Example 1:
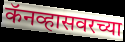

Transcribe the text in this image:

कॅनव्हासवरच्या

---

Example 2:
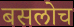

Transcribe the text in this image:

बसलोच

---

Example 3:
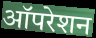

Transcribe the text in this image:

ऑपरेशन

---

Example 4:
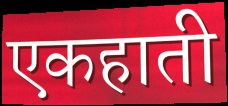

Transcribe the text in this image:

एकहाती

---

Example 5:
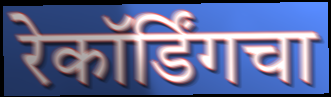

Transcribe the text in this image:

रेकॉर्डिंगचा